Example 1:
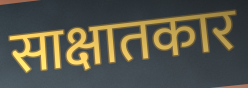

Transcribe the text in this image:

साक्षातकार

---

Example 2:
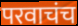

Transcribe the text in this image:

परवाचंच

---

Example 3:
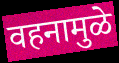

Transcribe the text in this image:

वहनामुळे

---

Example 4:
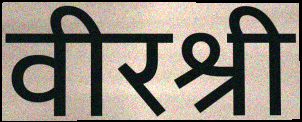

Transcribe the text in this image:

वीरश्री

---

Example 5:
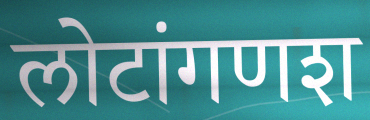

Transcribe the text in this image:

लोटांगणश